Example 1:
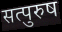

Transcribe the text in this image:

सत्पुरुष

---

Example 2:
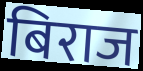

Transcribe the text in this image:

बिराज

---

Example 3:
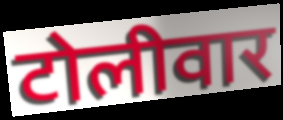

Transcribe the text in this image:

टोलीवार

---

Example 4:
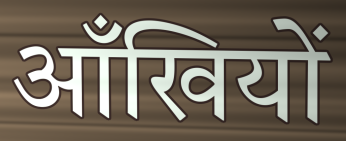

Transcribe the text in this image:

आँखियों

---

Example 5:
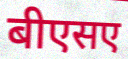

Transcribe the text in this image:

बीएसए